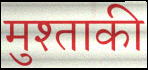
मुश्ताकी